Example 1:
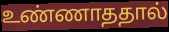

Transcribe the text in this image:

உண்ணாததால்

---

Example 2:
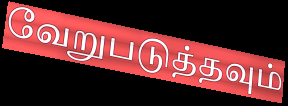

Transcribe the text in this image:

வேறுபடுத்தவும்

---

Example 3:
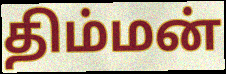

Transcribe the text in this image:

திம்மன்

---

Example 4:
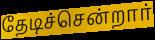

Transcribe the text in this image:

தேடிச்சென்றார்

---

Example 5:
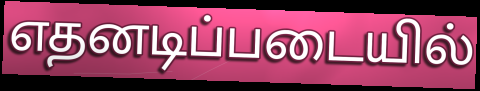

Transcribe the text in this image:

எதனடிப்படையில்